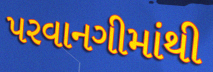
પરવાનગીમાંથી